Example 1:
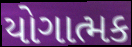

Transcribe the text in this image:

યોગાત્મક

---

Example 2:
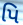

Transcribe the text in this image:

પિ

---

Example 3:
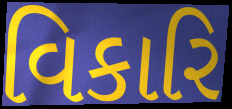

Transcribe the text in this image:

વિકારિ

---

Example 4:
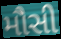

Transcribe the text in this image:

મૌસી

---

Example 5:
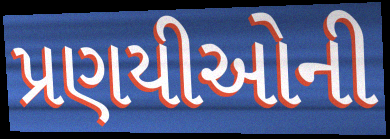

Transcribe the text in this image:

પ્રણયીઓની